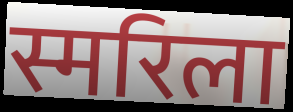
स्मरिला